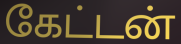
கேட்டன்